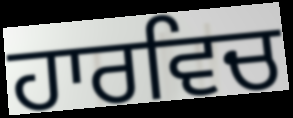
ਹਾਰਵਿਚ